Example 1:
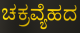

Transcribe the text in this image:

ಚಕ್ರವ್ಯೆಹದ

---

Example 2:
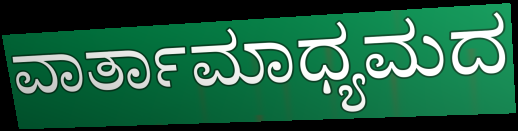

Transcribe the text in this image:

ವಾರ್ತಾಮಾಧ್ಯಮದ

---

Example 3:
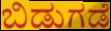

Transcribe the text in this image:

ಬಿಡುಗಡೆ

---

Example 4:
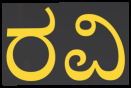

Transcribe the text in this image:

ರವಿ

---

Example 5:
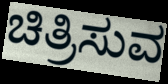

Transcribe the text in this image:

ಚಿತ್ರಿಸುವ